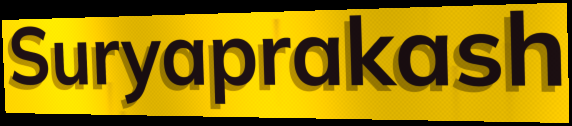
Suryaprakash